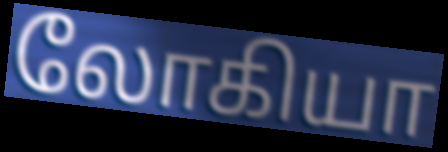
லோகியா